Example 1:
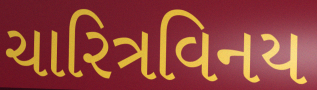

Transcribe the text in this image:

ચારિત્રવિનય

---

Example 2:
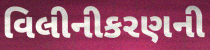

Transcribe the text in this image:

વિલીનીકરણની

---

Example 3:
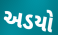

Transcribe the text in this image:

અડયો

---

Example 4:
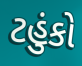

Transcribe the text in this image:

ટહુંકો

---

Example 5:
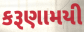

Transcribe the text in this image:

કરૂણામયી